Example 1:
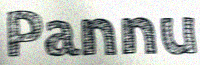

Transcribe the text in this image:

Pannu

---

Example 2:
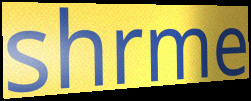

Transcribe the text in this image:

shrme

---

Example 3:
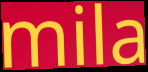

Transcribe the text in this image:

mila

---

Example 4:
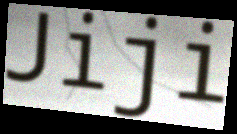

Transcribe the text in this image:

Jiji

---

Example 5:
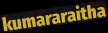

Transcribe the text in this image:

kumararaitha